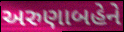
અરુણાબહેને